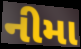
નીમા